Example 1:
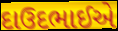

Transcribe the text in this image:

દાઉદભાઈએ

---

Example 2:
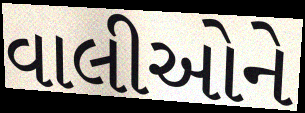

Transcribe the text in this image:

વાલીઓને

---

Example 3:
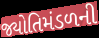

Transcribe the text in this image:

જ્યોતિમંડળની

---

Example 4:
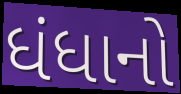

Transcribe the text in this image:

ધંધાનો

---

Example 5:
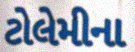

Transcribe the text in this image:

ટોલેમીના